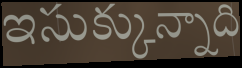
ఇసుక్కున్నాది